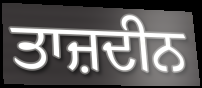
ਤਾਜ਼ਦੀਨ